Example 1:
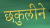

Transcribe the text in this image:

छकुलीने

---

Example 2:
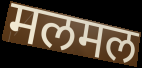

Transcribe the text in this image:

मलमल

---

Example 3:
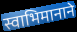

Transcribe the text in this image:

स्वाभिमानाने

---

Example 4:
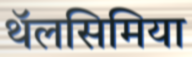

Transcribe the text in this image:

थॅलसिमिया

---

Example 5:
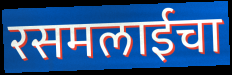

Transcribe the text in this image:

रसमलाईचा